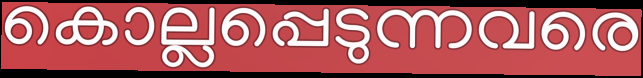
കൊല്ലപ്പെടുന്നവരെ